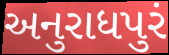
અનુરાધપુરં